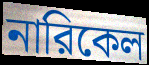
নারিকেল